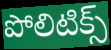
పోలిటిక్స్